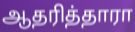
ஆதரித்தாரா